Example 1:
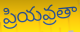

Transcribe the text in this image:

ప్రియవ్రతా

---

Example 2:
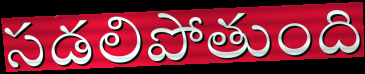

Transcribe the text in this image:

సడలిపోతుంది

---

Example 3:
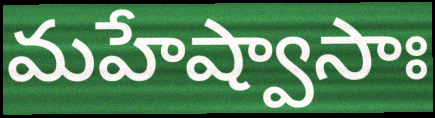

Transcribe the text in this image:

మహేష్వాసాః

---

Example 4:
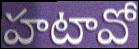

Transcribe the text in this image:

హటావో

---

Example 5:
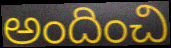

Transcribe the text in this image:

అందించి